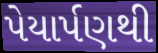
પેયાર્પણથી